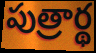
పుత్రార్థ